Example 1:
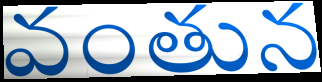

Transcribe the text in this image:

వంతున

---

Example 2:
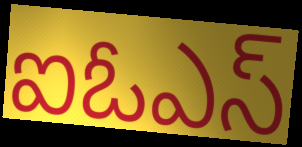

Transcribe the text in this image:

ఐఓఎస్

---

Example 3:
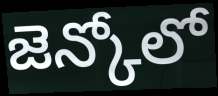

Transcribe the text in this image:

జెన్కోలో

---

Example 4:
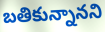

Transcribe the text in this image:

బతికున్నానని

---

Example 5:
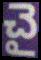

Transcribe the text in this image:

చై